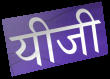
यीजी